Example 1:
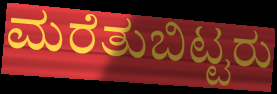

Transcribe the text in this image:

ಮರೆತುಬಿಟ್ಟರು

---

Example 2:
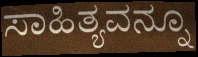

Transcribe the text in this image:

ಸಾಹಿತ್ಯವನ್ನೂ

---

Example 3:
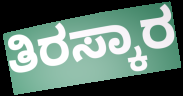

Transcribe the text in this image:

ತಿರಸ್ಕಾರ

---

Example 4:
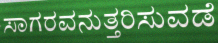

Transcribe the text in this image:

ಸಾಗರವನುತ್ತರಿಸುವಡೆ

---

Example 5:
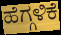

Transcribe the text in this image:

ಹೆಗ್ಗಳಿಕೆ